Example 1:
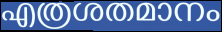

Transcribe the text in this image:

എത്രശതമാനം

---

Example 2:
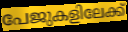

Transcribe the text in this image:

പേജുകളിലേക്ക്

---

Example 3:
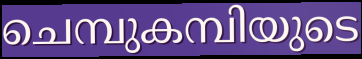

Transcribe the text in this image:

ചെമ്പുകമ്പിയുടെ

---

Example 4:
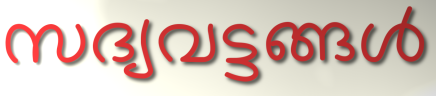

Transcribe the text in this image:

സദ്യവട്ടങ്ങൾ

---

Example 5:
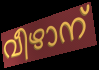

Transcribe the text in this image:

വീഴാന്